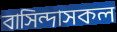
বাসিন্দাসকল